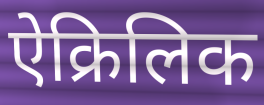
ऐक्रिलिक